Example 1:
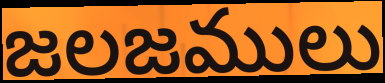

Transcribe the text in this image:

జలజములు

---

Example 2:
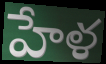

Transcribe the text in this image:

హేళ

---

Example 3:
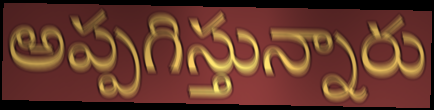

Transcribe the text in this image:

అప్పగిస్తున్నారు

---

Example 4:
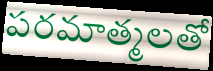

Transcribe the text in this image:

పరమాత్మలతో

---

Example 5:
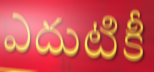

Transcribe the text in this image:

ఎదుటికీ